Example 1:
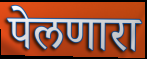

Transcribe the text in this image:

पेलणारा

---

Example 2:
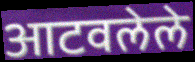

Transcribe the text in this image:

आटवलेले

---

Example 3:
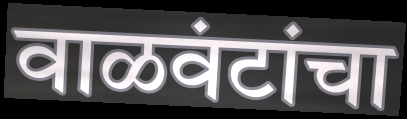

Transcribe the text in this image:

वाळवंटांचा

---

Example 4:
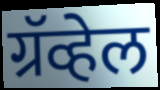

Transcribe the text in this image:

ग्रॅव्हेल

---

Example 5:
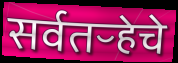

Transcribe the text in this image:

सर्वतऱ्हेचे